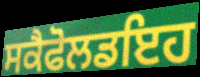
ਸਕੈਫੋਲਡਇਹ